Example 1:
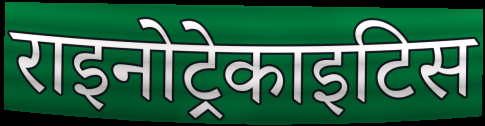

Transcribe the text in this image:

राइनोट्रेकाइटिस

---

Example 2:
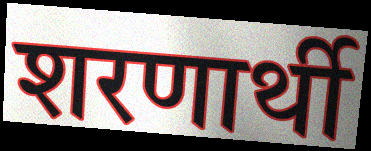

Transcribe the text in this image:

शरणार्थी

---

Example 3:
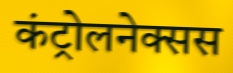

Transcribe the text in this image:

कंट्रोलनेक्सस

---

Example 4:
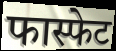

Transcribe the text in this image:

फास्फेट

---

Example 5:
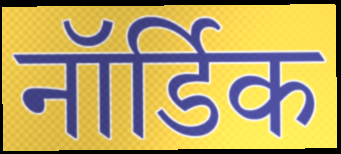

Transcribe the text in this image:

नॉर्डिक